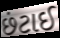
છંટાઈ